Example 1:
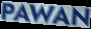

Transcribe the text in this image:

PAWAN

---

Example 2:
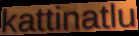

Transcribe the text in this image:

kattinatlu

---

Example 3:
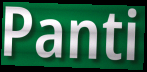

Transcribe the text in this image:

Panti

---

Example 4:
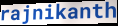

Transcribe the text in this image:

rajnikanth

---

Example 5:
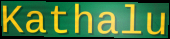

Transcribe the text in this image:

Kathalu